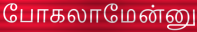
போகலாமேன்னு